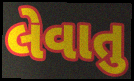
લેવાતુ